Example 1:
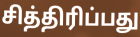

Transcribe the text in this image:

சித்திரிப்பது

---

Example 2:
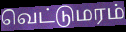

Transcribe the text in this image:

வெட்டுமரம்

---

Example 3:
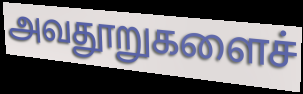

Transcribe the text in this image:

அவதூறுகளைச்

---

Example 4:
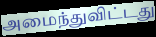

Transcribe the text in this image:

அமைந்துவிட்டது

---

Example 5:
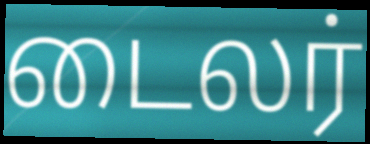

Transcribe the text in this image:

டைலர்